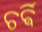
ଚର୍ଵି